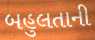
બહુલતાની